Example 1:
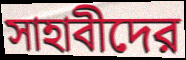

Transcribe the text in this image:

সাহাবীদের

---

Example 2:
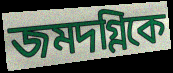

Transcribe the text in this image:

জমদগ্নিকে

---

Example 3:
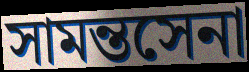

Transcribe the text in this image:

সামন্তসেনা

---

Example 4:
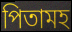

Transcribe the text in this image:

পিতামহ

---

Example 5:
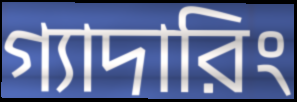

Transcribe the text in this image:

গ্যাদারিং